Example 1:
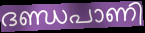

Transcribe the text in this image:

ദണ്ഡപാണി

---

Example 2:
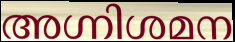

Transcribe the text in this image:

അഗ്നിശമന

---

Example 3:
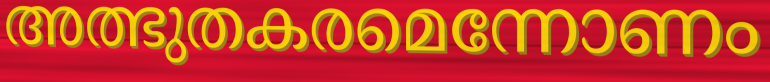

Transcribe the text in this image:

അത്ഭുതകരമെന്നോണം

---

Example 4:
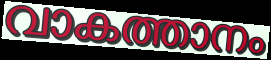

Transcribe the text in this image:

വാകത്താനം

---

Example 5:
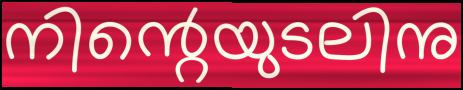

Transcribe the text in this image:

നിന്റെയുടലിനു